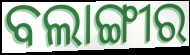
ବଲାଙ୍ଗୀର